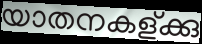
യാതനകള്ക്കു